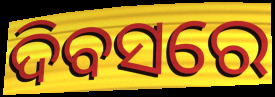
ଦିବସରେ